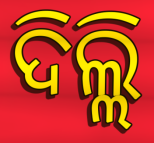
ଦିଲ୍ଲି